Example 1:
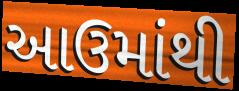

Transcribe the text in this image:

આઉમાંથી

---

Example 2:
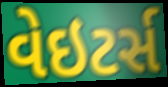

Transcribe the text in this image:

વેઇટર્સ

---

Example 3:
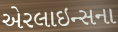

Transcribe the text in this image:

એરલાઇન્સના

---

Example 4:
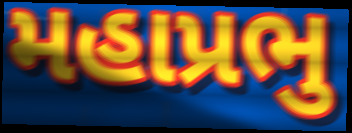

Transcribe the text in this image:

મહાપ્રભુ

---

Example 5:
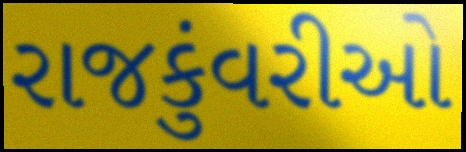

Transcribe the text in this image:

રાજકુંવરીઓ